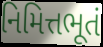
નિમિત્તભૂતં